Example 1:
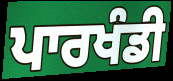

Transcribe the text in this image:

ਪਾਰਖੰਡੀ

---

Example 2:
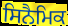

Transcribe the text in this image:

ਸਿਨੈਮਿਕ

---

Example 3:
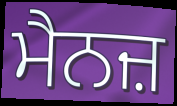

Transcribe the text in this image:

ਮੈਨਜ਼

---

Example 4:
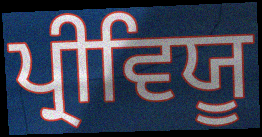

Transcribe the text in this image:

ਪ੍ਰੀਵਿਯੂ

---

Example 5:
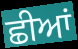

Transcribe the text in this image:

ਛੀਆਂ